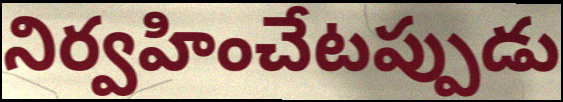
నిర్వహించేటప్పుడు